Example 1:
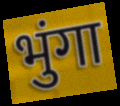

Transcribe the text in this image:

भुंगा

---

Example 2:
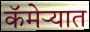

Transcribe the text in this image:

कॅमेऱ्यात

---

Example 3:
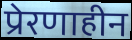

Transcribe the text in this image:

प्रेरणाहीन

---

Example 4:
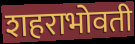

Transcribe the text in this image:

शहराभोवती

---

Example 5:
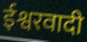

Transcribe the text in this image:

ईश्वरवादी